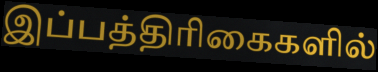
இப்பத்திரிகைகளில்